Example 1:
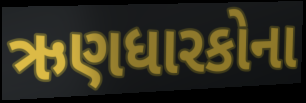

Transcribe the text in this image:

ઋણધારકોના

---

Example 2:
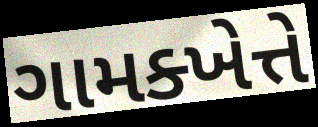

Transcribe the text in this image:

ગામક્ખેત્તે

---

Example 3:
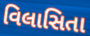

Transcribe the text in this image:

વિલાસિતા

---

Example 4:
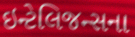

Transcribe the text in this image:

ઇન્ટેલિજન્સના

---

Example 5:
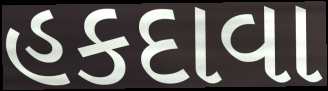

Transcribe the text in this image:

હકદાવા